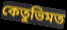
কেতুভিমত